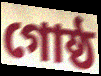
গোষ্ঠ